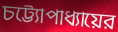
চট্ট্যোপাধ্যায়ের